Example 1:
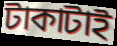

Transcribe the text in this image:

টাকাটাই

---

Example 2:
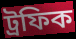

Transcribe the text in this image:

ট্রফিক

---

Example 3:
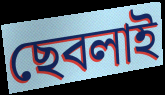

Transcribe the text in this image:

ছেবলাই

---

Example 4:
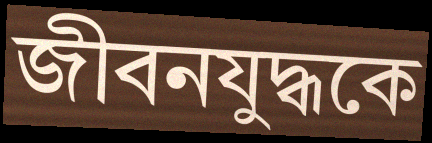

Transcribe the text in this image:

জীবনযুদ্ধকে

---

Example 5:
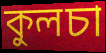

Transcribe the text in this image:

কুলচা